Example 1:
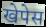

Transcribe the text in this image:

खेपेस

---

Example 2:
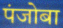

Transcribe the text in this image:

पंजोबा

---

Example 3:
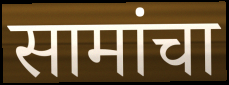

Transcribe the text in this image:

सामांचा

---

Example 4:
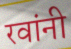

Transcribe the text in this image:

रवांनी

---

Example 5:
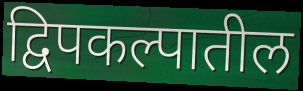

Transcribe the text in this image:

द्विपकल्पातील